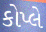
કોપ્લે